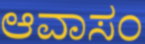
ಆವಾಸಂ